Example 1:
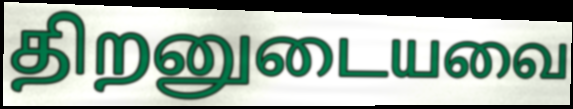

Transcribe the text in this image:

திறனுடையவை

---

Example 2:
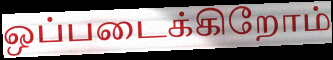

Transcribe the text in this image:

ஒப்படைக்கிறோம்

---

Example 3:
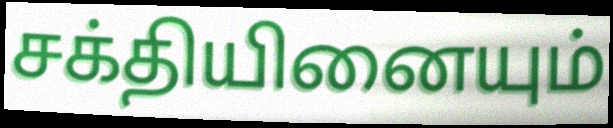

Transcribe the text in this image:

சக்தியினையும்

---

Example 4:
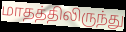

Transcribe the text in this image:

மாதத்திலிருந்து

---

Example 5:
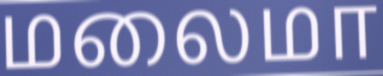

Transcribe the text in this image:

மலைமா